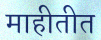
माहीतीत